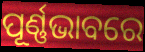
ପୂର୍ଣ୍ଣଭାବରେ